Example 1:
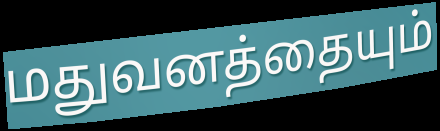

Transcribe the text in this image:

மதுவனத்தையும்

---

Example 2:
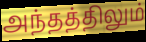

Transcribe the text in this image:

அந்தத்திலும்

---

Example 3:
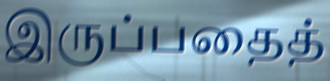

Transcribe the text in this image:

இருப்பதைத்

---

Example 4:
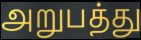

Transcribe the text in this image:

அறுபத்து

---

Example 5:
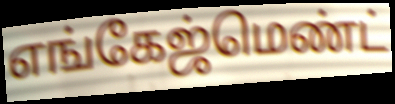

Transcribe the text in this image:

எங்கேஜ்மெண்ட்